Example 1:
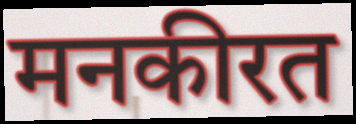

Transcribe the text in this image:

मनकीरत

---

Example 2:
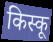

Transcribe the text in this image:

किस्कू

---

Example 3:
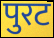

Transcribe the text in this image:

पुरट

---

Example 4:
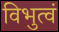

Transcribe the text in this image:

विभुत्वं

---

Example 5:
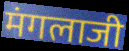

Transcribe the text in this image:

मंगलाजी